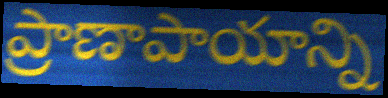
ప్రాణాపాయాన్ని